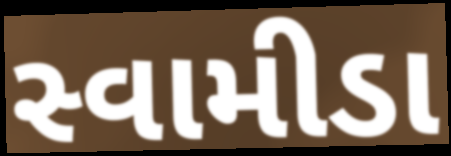
સ્વામીડા